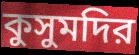
কুসুমদির